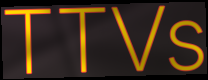
TTVs